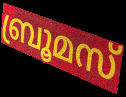
ബ്രൂമസ്